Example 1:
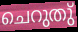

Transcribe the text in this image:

ചെറുതു്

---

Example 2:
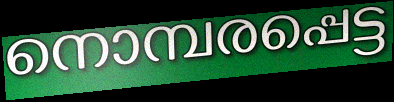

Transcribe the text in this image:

നൊമ്പരപ്പെട്ട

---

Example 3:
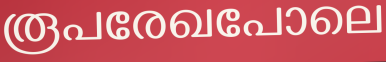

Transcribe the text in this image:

രൂപരേഖപോലെ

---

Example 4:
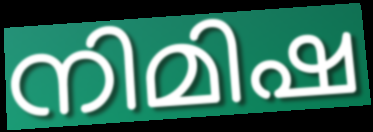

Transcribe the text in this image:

നിമിഷ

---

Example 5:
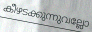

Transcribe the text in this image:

കീഴടക്കുന്നുവല്ലോ